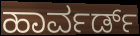
ಹಾರ್ವರ್ಡ್